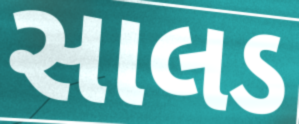
સાલડ